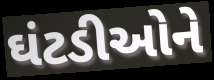
ઘંટડીઓને